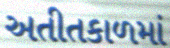
અતીતકાળમાં